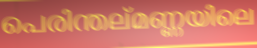
പെരിന്തല്മണ്ണയിലെ